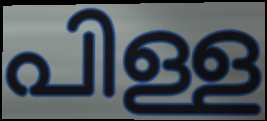
പിള്ള